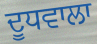
ਦੂਧਵਾਲਾ